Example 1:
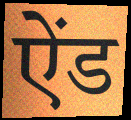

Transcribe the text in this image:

ऐंड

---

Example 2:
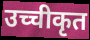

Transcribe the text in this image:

उच्चीकृत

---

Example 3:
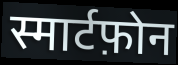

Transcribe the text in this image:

स्मार्टफ़ोन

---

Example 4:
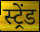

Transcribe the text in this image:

स्ट्रेंड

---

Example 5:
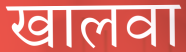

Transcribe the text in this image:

खालवा